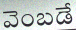
వెంబడే